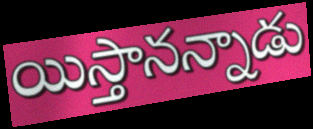
యిస్తానన్నాడు